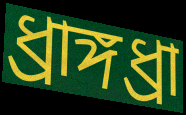
ধ্রাঙ্গধ্রা